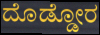
ದೊಡ್ಡೋರ